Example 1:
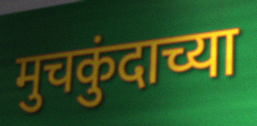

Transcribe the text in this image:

मुचकुंदाच्या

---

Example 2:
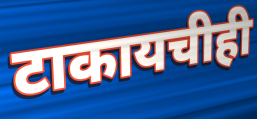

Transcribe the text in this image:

टाकायचीही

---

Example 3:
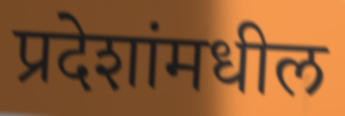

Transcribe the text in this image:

प्रदेशांमधील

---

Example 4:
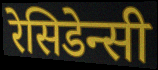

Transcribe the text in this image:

रेसिडेन्सी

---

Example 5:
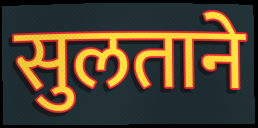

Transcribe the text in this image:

सुलताने